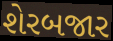
શેરબજાર